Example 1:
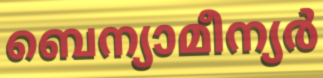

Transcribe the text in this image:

ബെന്യാമീന്യർ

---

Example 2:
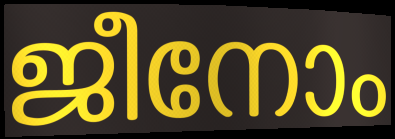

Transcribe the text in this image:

ജീനോം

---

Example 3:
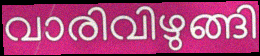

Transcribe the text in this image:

വാരിവിഴുങ്ങി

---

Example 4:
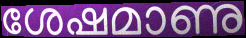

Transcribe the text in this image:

ശേഷമാണു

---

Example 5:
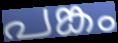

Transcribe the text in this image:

പങ്കം